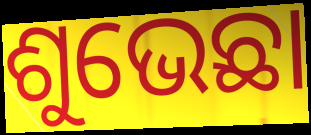
ଶୁଭେଛା